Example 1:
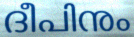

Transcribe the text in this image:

ദീപിനും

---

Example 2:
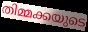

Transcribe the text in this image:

തിമ്മക്കയുടെ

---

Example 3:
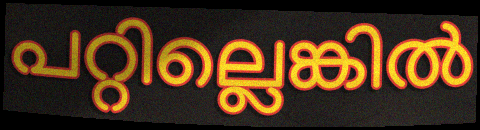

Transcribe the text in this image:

പറ്റില്ലെങ്കിൽ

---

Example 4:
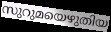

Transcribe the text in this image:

സുറുമയെഴുതിയ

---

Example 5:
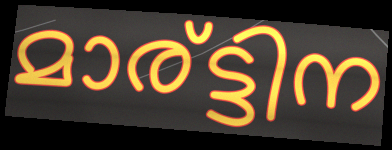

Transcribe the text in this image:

മാര്ട്ടിന